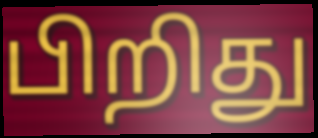
பிறிது